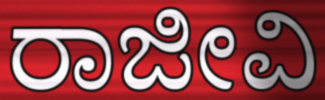
ರಾಜೀವಿ